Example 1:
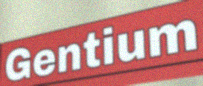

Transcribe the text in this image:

Gentium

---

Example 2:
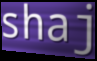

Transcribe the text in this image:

shaj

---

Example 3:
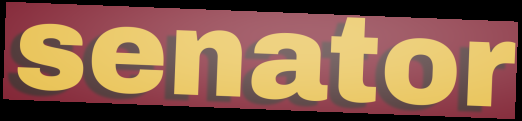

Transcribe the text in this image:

senator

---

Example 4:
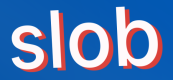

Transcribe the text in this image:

slob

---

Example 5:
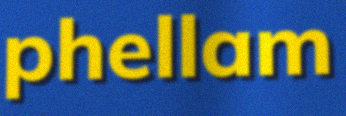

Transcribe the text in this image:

phellam